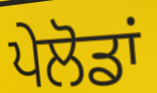
ਪੇਲੋਡਾਂ